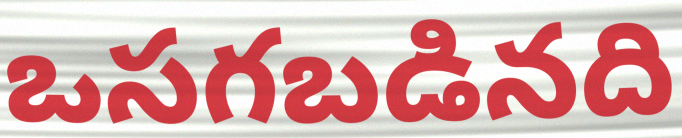
ఒసగబడినది